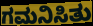
ಗಮನಿಸಿತು